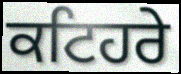
ਕਟਿਹਰੇ